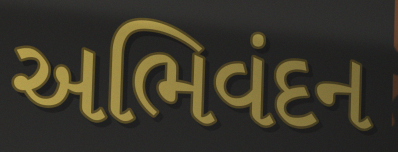
અભિવંદન